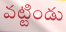
వట్టిండు